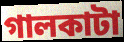
গালকাটা